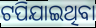
ଟପିଯାଇଥିବା